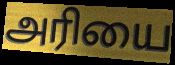
அரியை